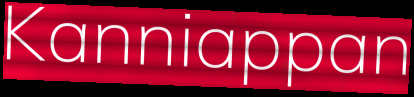
Kanniappan